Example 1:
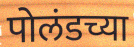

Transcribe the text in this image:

पोलंडच्या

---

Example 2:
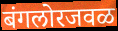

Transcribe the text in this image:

बंगलोरजवळ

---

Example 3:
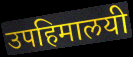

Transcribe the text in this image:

उपहिमालयी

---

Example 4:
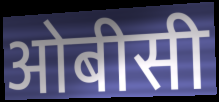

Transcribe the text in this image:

ओबीसी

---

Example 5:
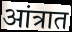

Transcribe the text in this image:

आंत्रात